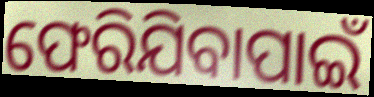
ଫେରିଯିବାପାଇଁ